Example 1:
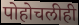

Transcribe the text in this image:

पोहोचलीही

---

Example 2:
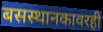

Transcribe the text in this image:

बसस्थानकावरही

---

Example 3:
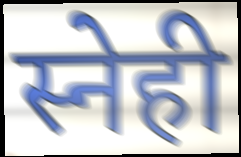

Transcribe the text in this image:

स्नेही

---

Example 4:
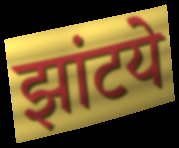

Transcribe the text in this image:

झांटये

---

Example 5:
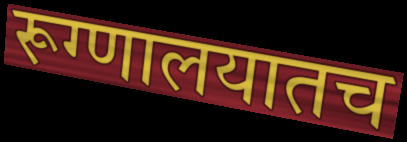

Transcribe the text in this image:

रूग्णालयातच